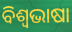
ବିଶ୍ୱଭାଷା